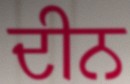
ਦੀਨ